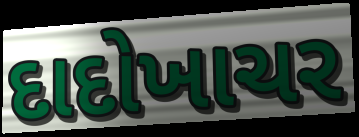
દાદોખાચર